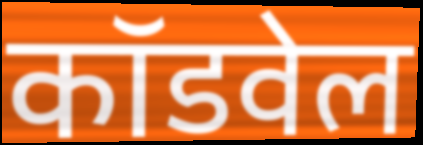
कॉडवेल